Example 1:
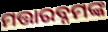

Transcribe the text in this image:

ମତ୍ତାରବ୍ନମଙ୍କ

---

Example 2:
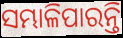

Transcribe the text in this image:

ସମ୍ଭାଳିପାରନ୍ତି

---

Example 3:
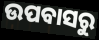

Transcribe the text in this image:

ଉପବାସରୁ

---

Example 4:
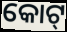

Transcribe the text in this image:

କୋଟ୍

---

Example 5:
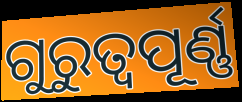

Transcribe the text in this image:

ଗୁରୁତ୍ବପୂର୍ଣ୍ଣ